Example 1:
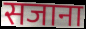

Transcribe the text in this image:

सजाना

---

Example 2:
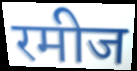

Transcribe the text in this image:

रमीज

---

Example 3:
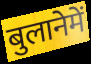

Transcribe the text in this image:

बुलानेमें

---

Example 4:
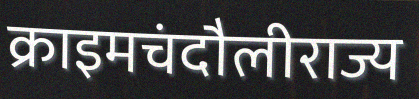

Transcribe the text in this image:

क्राइमचंदौलीराज्य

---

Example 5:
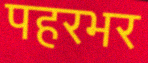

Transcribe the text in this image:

पहरभर